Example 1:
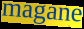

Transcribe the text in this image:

magane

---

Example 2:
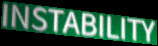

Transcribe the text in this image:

INSTABILITY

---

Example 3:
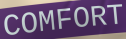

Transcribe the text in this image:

COMFORT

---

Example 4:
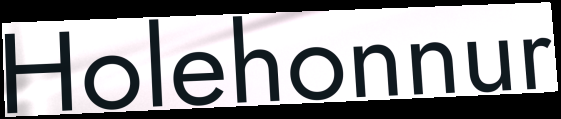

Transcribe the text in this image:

Holehonnur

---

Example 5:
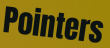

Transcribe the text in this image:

Pointers